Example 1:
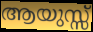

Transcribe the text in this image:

ആയുസ്സ്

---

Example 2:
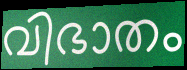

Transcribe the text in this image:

വിഭാതം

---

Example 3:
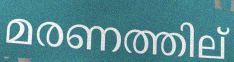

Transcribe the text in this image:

മരണത്തില്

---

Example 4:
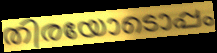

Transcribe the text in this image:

തിരയോടൊപ്പം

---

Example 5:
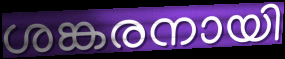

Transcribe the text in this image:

ശങ്കരനായി